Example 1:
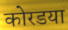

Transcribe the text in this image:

कोरडया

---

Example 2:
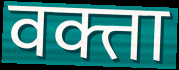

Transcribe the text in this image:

वक्ता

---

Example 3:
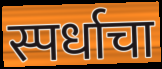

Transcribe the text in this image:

स्पर्धाचा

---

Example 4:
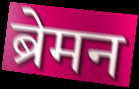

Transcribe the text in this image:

ब्रेमन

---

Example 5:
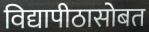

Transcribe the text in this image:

विद्यापीठासोबत